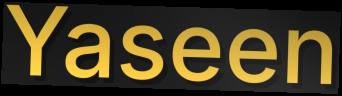
Yaseen